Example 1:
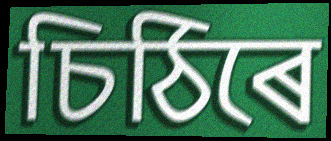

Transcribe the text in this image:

চিঠিৰে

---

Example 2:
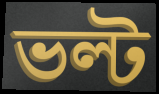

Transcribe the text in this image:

ভল্ট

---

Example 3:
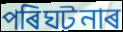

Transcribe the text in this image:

পৰিঘটনাৰ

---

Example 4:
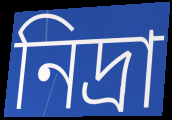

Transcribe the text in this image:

নিদ্ৰা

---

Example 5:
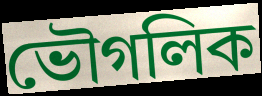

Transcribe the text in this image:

ভৌগলিক